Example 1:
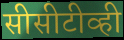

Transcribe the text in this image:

सीसीटीव्ही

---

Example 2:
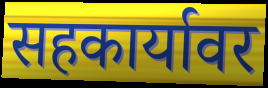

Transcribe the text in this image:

सहकार्यावर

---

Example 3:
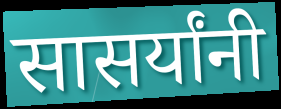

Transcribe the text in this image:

सासर्यांनी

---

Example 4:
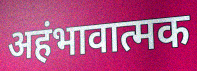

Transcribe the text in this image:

अहंभावात्मक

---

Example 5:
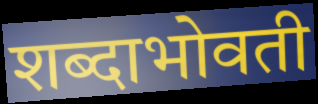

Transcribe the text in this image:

शब्दाभोवती